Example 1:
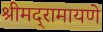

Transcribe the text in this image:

श्रीमद्‌रामायणे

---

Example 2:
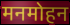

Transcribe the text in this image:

मनमोहन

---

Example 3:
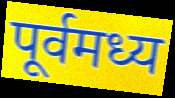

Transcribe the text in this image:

पूर्वमध्य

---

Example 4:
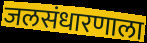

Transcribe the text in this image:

जलसंधारणाला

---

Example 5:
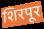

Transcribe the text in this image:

शिरपूर